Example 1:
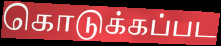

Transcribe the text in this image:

கொடுக்கப்பட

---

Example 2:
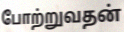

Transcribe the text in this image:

போற்றுவதன்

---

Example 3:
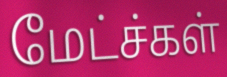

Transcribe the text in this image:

மேட்ச்கள்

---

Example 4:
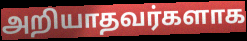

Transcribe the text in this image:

அறியாதவர்களாக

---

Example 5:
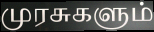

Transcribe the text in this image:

முரசுகளும்